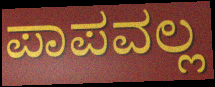
ಪಾಪವಲ್ಲ